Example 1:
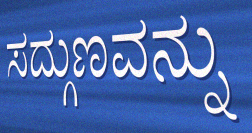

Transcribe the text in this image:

ಸದ್ಗುಣವನ್ನು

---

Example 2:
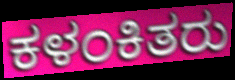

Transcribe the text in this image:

ಕಳಂಕಿತರು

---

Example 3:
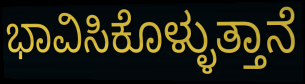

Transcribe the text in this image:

ಭಾವಿಸಿಕೊಳ್ಳುತ್ತಾನೆ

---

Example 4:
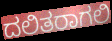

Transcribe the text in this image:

ದಲಿತರಾಗಲಿ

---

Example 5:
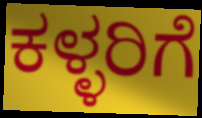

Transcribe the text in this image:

ಕಳ್ಳರಿಗೆ